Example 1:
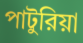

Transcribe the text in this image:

পাটুরিয়া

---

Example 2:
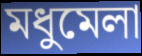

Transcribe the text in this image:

মধুমেলা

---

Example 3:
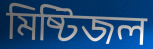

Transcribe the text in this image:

মিষ্টিজল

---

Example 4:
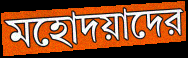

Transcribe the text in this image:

মহোদয়াদের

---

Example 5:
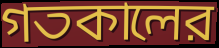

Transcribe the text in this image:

গতকালের